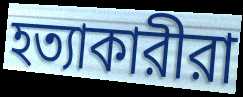
হত্যাকারীরা